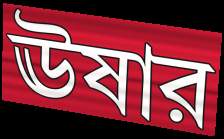
ঊষার